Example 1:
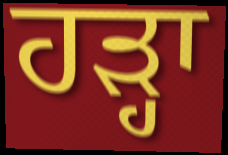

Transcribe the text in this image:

ਹੜ੍ਹਾ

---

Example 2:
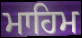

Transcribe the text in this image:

ਮਾਹਿਮ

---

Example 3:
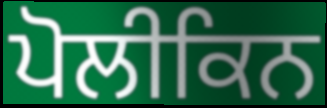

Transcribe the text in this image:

ਪੋਲੀਕਿਨ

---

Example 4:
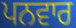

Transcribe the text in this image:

ਪਨਵਾਰ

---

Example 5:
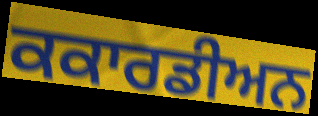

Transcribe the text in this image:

ਕਕਾਰਡੀਅਨ